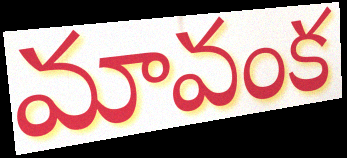
మావంక